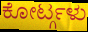
ಕೋರ್ಟ್ಗಳು